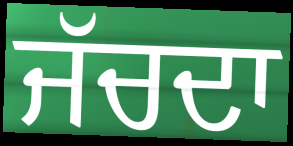
ਜੱਚਦਾ